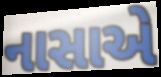
નાસાએ